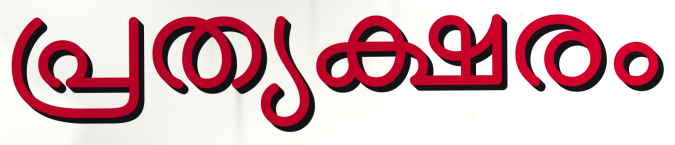
പ്രത്യക്ഷരം